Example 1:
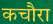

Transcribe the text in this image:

कचौरा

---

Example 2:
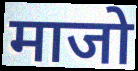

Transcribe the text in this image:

माजो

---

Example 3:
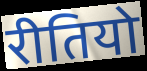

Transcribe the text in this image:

रीतियो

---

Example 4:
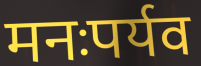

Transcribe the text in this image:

मनःपर्यव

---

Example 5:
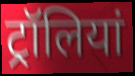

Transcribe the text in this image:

ट्रॉलियां